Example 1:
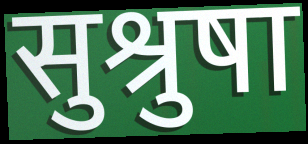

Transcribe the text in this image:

सुश्रुषा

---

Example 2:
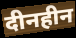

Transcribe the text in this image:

दीनहीन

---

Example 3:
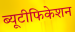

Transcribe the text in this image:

ब्यूटीफिकेशन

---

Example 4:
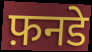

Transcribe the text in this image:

फ़नडे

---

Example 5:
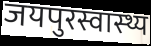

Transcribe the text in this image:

जयपुरस्वास्थ्य